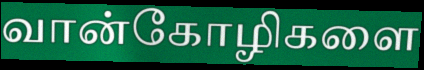
வான்கோழிகளை